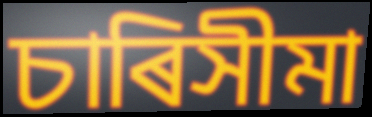
চাৰিসীমা